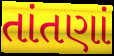
તાંતણાં